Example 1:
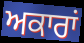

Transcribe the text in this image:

ਅਕਾਰਾਂ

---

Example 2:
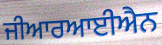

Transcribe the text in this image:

ਜੀਆਰਆਈਐਨ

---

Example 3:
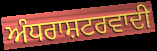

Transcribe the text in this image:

ਅੰਧਰਾਸ਼ਟਰਵਾਦੀ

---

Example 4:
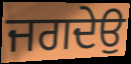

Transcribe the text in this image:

ਜਗਦੇਉ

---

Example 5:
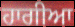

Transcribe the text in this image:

ਹਾਗੀਆ